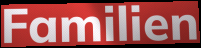
Familien